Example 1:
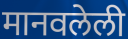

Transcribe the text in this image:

मानवलेली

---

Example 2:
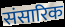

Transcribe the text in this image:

संसारिक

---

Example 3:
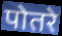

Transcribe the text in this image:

पोतरे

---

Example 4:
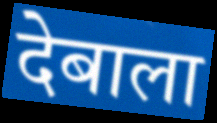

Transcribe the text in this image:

देबाला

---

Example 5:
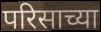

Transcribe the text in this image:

परिसाच्या